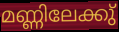
മണ്ണിലേക്കു്